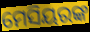
ମେସିୟରଙ୍କ